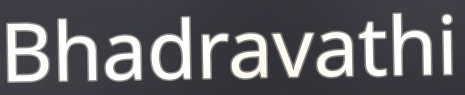
Bhadravathi